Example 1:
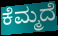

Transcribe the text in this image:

ಕೆಮ್ಮದೆ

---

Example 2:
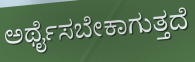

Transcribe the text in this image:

ಅರ್ಥೈಸಬೇಕಾಗುತ್ತದೆ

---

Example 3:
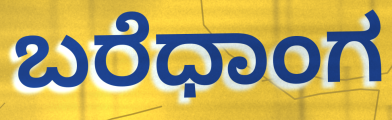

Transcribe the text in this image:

ಬರೆಧಾಂಗ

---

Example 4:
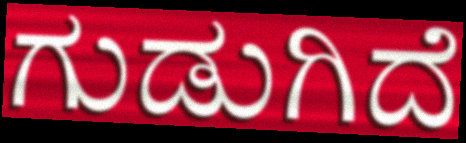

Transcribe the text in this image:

ಗುಡುಗಿದೆ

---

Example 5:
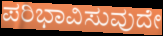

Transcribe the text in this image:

ಪರಿಭಾವಿಸುವುದೇ